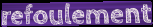
refoulement